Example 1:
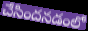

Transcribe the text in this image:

చేసిందనడంలో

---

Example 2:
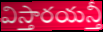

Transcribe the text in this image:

విస్తారయన్తీ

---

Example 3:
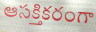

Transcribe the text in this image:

ఆసక్తికరంగా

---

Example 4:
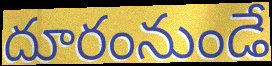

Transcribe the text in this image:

దూరంనుండే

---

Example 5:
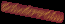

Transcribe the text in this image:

భయంకరాకారము